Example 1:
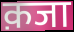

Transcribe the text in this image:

क़जा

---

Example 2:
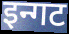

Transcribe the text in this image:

इन्गट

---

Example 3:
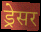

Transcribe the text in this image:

ड्रेसर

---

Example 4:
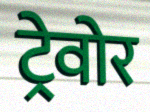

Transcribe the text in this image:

ट्रेवोर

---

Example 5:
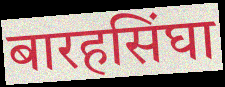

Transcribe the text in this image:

बारहसिंघा